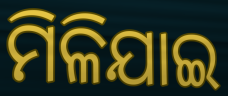
ମିଳିଯାଇ